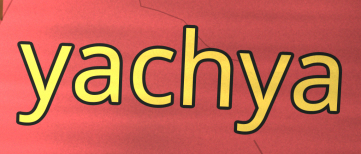
yachya